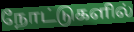
நோட்டுகளில்